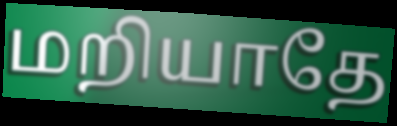
மறியாதே